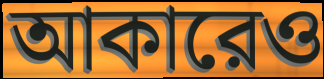
আকারেও